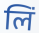
लिं